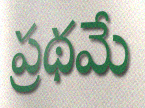
ప్రథమే